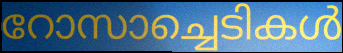
റോസാച്ചെടികൾ